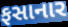
ફસાનાર